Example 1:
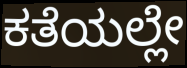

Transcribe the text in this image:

ಕತೆಯಲ್ಲೇ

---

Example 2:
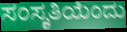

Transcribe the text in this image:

ಸಂಸ್ಕೃತಿಯೆಂದು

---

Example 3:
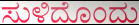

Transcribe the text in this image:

ಸುಳಿದೊಂದು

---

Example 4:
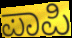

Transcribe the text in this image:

ಪಾಪಿ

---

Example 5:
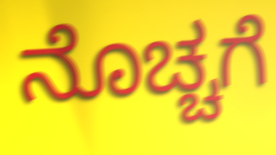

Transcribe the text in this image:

ನೊಚ್ಚಗೆ